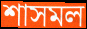
শাসমল